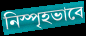
নিস্পৃহভাবে